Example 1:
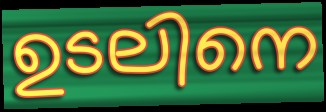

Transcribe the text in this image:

ഉടലിനെ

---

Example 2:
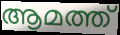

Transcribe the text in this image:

ആമത്ത്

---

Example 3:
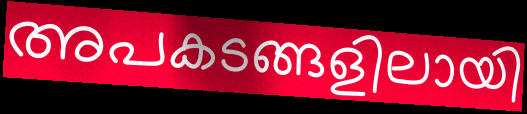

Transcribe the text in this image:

അപകടങ്ങളിലായി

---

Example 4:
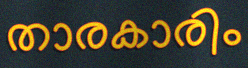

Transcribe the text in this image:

താരകാരിം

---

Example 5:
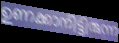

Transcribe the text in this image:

ഉണക്കാനിട്ടിരുന്ന